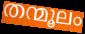
തന്മൂലം